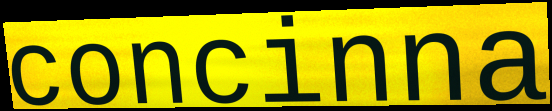
concinna